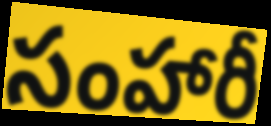
సంహారీ